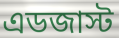
এডজাস্ট